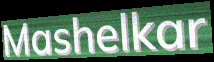
Mashelkar